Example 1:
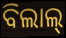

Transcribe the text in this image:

ବିଲାଲ୍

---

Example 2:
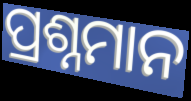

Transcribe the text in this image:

ପ୍ରଶ୍ନମାନ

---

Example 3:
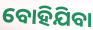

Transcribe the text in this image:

ବୋହିଯିବା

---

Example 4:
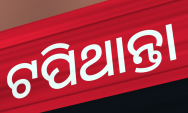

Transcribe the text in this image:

ଟପିଥାନ୍ତା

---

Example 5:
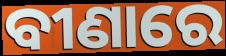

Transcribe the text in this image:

ବୀଣାରେ